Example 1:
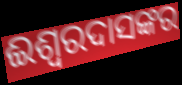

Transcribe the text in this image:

ଈଶ୍ଵରଦାସଙ୍କର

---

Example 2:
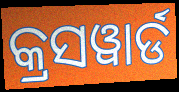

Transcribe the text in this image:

କ୍ରସୱାର୍ଡ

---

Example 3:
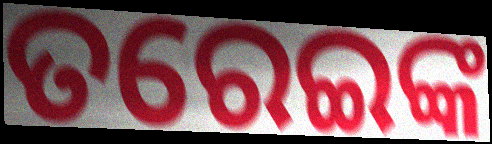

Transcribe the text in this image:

ତରେଇଙ୍କ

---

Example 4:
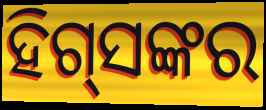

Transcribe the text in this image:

ହିଗ୍‌ସଙ୍କର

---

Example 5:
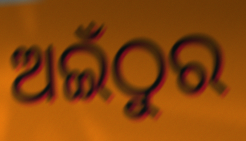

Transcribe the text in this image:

ଅଇଁଠୁର